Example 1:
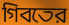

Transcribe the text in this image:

গিবতের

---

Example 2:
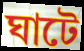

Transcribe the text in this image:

ঘাটে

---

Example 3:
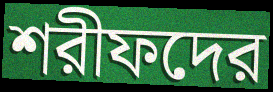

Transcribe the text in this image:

শরীফদের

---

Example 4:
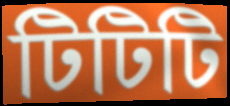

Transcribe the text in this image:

টিটিটি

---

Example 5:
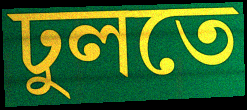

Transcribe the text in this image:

ঢুলতে